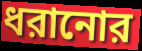
ধরানোর